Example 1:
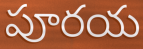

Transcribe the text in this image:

పూరయ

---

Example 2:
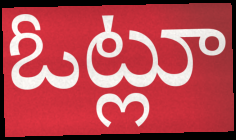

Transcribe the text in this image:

ఓట్లూ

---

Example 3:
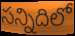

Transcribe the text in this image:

సన్నిదిలో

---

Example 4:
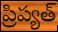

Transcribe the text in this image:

ప్రిప్యత్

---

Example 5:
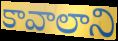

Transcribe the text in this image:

కావాలాని